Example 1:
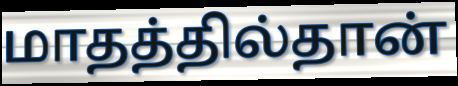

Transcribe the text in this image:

மாதத்தில்தான்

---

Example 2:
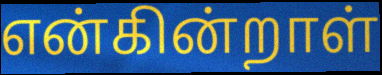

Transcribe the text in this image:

என்கின்றாள்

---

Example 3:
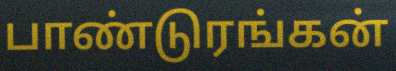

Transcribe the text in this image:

பாண்டுரங்கன்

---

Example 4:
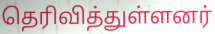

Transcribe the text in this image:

தெரிவித்துள்ளனர்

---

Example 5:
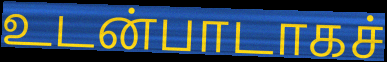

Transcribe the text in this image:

உடன்பாடாகச்